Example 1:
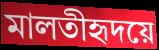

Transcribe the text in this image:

মালতীহৃদয়ে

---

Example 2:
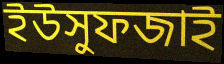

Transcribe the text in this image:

ইউসুফজাই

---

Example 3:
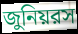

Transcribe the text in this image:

জুনিয়রস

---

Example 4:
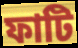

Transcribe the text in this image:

ফাটি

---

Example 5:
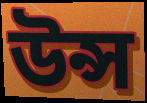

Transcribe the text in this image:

উন্স